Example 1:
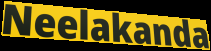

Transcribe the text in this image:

Neelakanda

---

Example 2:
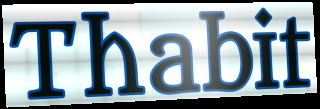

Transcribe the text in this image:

Thabit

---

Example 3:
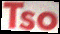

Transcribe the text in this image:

Tso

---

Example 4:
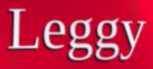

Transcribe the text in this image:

Leggy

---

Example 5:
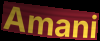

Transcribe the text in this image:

Amani